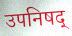
उपनिषद्